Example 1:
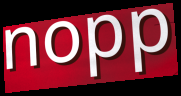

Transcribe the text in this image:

nopp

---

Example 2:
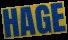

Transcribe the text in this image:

HAGE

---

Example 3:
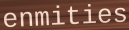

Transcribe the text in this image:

enmities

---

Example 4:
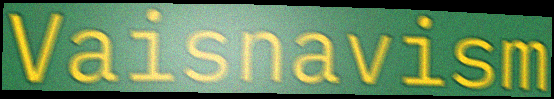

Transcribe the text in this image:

Vaisnavism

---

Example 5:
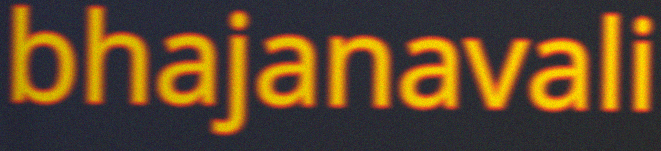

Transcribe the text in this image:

bhajanavali